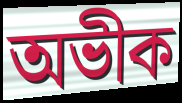
অভীক